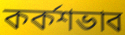
কর্কশভাব